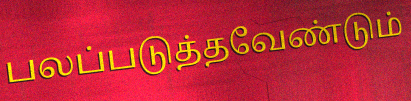
பலப்படுத்தவேண்டும்